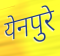
येनपुरे